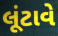
લૂંટાવે